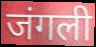
जंगली